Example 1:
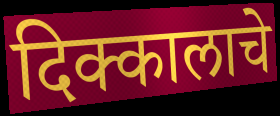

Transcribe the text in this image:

दिक्कालाचे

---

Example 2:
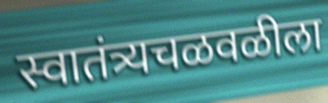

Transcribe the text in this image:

स्वातंत्र्यचळवळीला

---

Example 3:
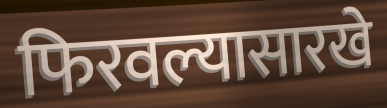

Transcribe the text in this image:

फिरवल्यासारखे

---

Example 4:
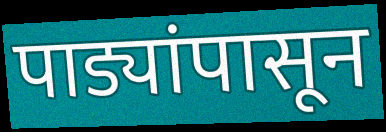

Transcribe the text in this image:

पाड्यांपासून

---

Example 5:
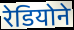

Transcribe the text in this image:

रेडियोने